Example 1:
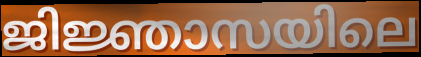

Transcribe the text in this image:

ജിജ്ഞാസയിലെ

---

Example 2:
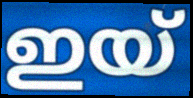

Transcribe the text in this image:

ഇയ്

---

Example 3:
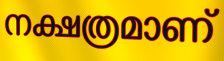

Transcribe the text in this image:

നക്ഷത്രമാണ്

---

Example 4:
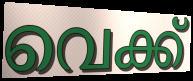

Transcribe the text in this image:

വെക്ക്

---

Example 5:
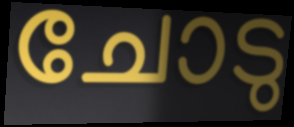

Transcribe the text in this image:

ചോടു